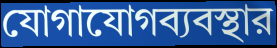
যোগাযোগব্যবস্থার